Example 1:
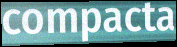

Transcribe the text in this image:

compacta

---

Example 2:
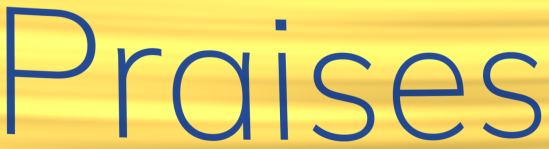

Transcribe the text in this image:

Praises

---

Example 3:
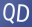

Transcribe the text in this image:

QD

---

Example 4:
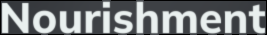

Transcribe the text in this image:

Nourishment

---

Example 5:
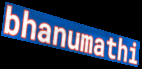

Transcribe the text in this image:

bhanumathi